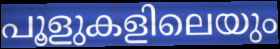
പൂളുകളിലെയും